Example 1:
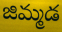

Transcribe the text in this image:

జిమ్మడ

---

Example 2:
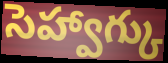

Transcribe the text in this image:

సెహ్వాగ్కు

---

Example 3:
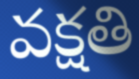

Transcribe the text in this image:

వక్షతి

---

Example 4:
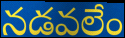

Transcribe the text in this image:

నడవలేం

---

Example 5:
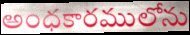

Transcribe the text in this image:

అంధకారములోను